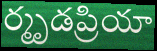
ర్మృడప్రియా